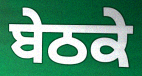
ਬੇਠਕੇ